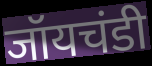
जॉयचंडी